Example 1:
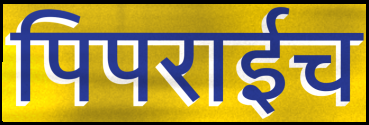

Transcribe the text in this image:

पिपराईच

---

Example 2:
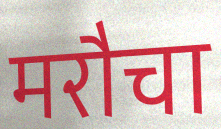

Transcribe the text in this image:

मरौचा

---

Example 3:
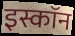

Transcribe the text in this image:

इस्‍कॉन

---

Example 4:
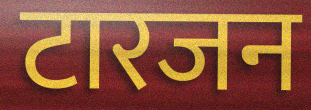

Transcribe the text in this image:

टारजन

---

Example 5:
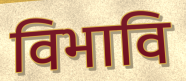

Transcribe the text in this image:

विभावि